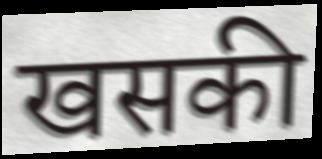
खसकी